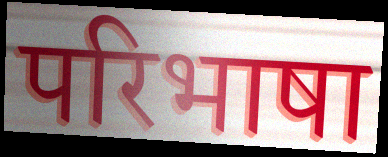
परिभाषा